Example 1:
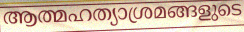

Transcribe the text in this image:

ആത്മഹത്യാശ്രമങ്ങളുടെ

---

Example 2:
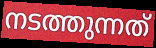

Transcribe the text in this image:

നടത്തുന്നത്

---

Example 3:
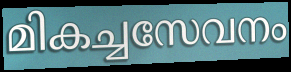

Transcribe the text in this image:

മികച്ചസേവനം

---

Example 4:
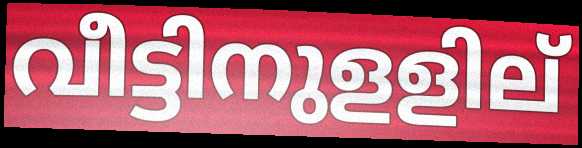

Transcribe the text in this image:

വീട്ടിനുളളില്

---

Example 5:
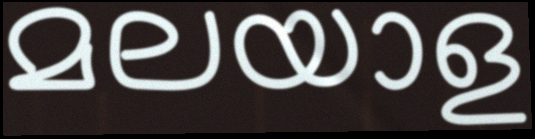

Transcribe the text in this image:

മലയാള